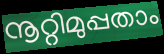
നൂറ്റിമുപ്പതാം